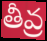
తీవ్ర